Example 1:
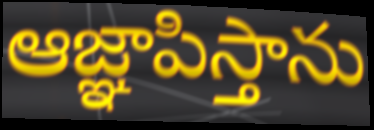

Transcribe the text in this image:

ఆజ్ఞాపిస్తాను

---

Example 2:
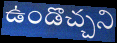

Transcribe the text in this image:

ఉండొచ్చని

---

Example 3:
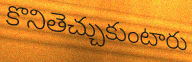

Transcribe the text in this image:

కొనితెచ్చుకుంటారు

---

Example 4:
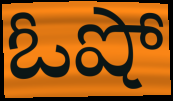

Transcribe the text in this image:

ఓషో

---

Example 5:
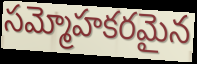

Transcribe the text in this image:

సమ్మోహకరమైన